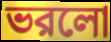
ভরলো